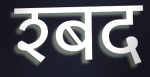
श्बद